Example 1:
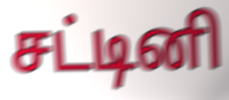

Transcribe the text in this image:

சட்டினி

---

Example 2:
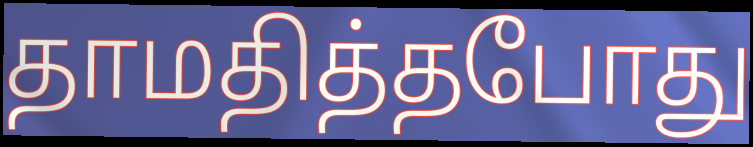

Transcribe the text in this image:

தாமதித்தபோது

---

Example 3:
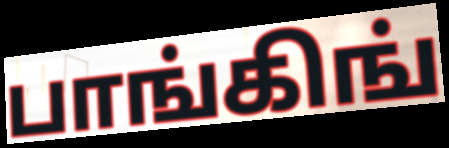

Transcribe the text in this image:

பாங்கிங்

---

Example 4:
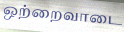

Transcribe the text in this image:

ஒற்றைவாடை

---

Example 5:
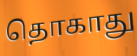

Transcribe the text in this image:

தொகாது